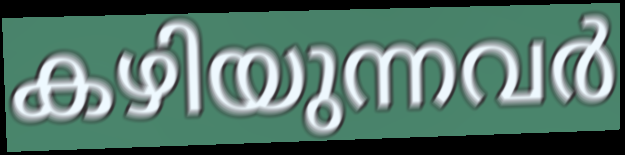
കഴിയുന്നവർ